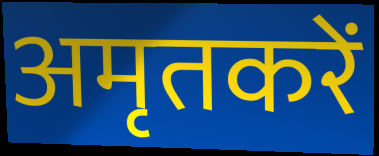
अमृतकरें